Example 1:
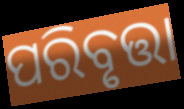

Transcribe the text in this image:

ପରିବୃତ୍ତା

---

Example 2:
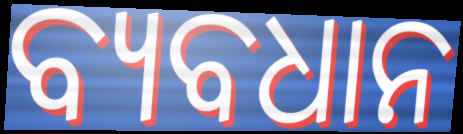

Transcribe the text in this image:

ବ୍ୟବଧାନ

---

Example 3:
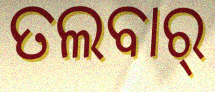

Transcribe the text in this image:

ତଲବାର୍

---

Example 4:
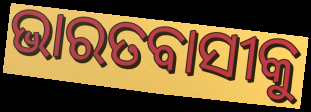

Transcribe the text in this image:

ଭାରତବାସୀକୁ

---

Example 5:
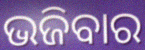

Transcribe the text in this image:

ଭଜିବାର